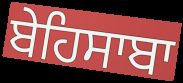
ਬੇਹਿਸਾਬਾ